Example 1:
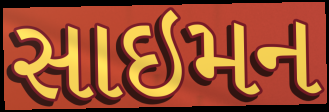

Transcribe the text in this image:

સાઇમન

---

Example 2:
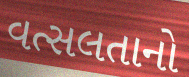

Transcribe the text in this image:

વત્સલતાનો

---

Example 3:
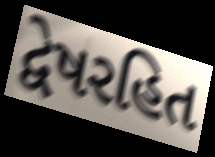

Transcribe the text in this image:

દ્વેષરહિત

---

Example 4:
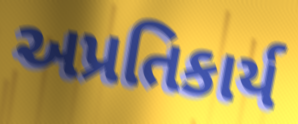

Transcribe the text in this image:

અપ્રતિકાર્ય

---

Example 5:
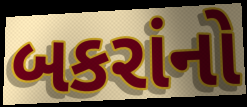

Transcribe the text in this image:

બકરાંનો